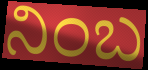
ನಿಂಬ